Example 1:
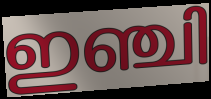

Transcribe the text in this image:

ഇഞ്ചി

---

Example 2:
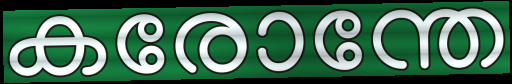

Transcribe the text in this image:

കരോന്തേ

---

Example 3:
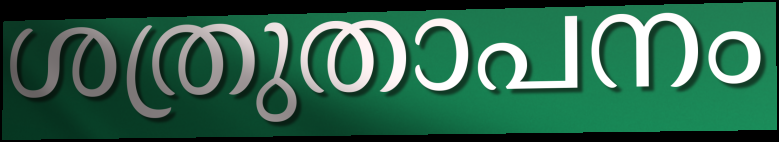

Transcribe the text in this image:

ശത്രുതാപനം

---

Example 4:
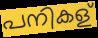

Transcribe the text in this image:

പനികള്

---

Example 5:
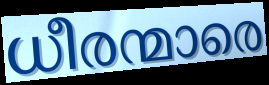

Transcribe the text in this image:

ധീരന്മാരെ